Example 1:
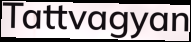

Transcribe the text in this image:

Tattvagyan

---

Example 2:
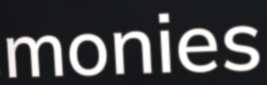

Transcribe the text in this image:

monies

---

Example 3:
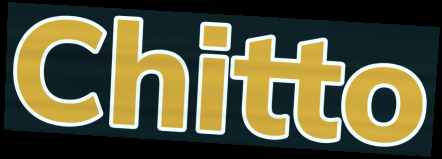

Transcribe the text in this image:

Chitto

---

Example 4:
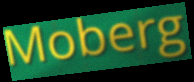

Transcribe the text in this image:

Moberg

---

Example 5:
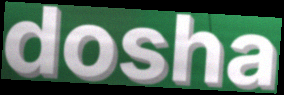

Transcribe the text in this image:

dosha